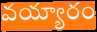
వయ్యారం